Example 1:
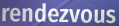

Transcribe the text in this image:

rendezvous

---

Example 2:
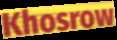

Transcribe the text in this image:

Khosrow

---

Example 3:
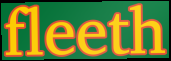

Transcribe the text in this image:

fleeth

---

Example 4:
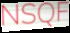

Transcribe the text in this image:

NSQF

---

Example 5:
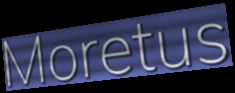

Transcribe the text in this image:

Moretus